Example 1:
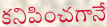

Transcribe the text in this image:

కనిపించగానే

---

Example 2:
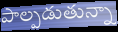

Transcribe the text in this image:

పాల్పడుతున్నా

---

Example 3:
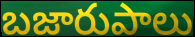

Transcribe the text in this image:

బజారుపాలు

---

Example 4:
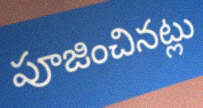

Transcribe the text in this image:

పూజించినట్లు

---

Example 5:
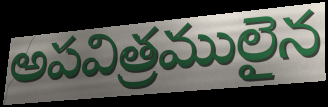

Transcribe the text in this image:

అపవిత్రములైన